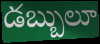
డబ్బులూ